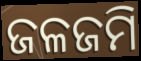
ଜଳଜମି